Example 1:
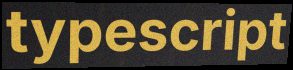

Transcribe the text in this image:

typescript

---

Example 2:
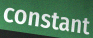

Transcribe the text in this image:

constant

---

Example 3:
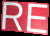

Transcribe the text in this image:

RE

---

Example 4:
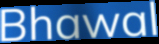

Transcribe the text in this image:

Bhawal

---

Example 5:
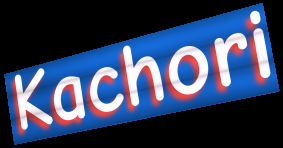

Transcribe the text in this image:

Kachori